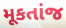
મૂકતાંજ